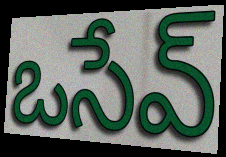
ఒసేవ్